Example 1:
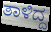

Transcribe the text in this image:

ತಾಳಿದ್ದ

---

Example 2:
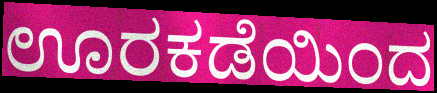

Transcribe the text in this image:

ಊರಕಡೆಯಿಂದ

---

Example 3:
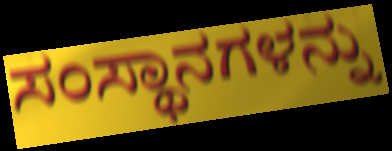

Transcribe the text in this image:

ಸಂಸ್ಥಾನಗಳನ್ನು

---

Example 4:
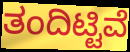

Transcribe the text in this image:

ತಂದಿಟ್ಟಿವೆ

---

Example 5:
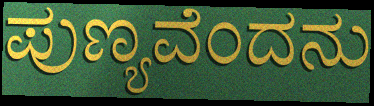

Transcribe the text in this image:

ಪುಣ್ಯವೆಂದನು